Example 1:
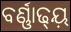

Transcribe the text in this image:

ବର୍ଣ୍ଣାଢ୍ୟ଼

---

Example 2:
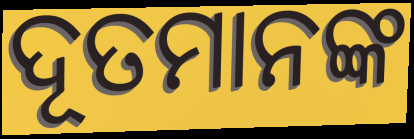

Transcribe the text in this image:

ଦୂତମାନଙ୍କ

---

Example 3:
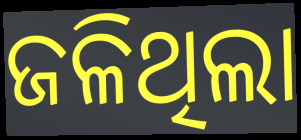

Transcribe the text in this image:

ଜଳିଥିଲା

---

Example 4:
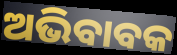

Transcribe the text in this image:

ଅଭିବାବକ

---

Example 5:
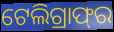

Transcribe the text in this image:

ଟେଲିଗ୍ରାଫ୍‌ର